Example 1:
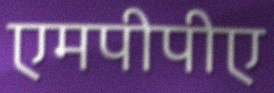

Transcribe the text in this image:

एमपीपीए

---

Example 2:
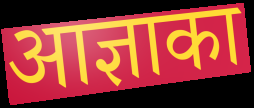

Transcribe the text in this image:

आज्ञाका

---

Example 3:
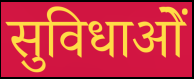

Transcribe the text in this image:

सुविधाओें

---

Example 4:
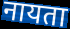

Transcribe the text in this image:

नायता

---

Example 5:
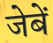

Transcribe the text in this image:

जेबें